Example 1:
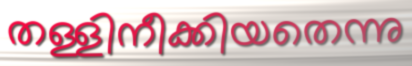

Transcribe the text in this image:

തള്ളിനീക്കിയതെന്നു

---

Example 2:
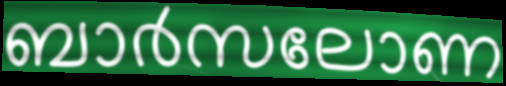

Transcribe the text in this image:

ബാർസലോണ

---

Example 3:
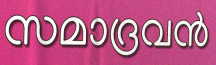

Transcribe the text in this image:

സമാദ്രവൻ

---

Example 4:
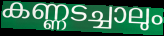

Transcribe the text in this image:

കണ്ണടച്ചാലും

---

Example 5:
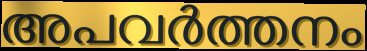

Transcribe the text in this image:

അപവർത്തനം